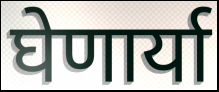
घेणार्या